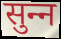
सुन्‍न